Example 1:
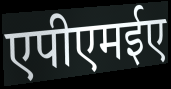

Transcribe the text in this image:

एपीएमईए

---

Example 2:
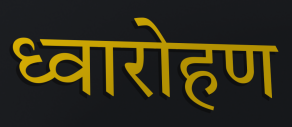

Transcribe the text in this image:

ध्वारोहण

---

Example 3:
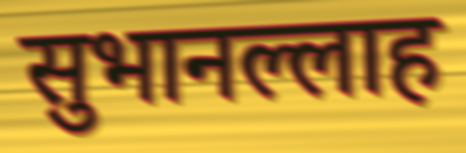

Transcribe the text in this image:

सुभानल्लाह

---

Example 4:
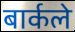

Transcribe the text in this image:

बार्कले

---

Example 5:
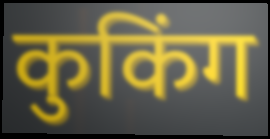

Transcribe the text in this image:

कुकिंग